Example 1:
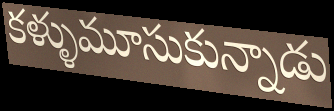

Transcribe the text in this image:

కళ్ళుమూసుకున్నాడు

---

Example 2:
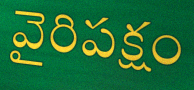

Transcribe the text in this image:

వైరిపక్షం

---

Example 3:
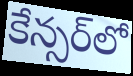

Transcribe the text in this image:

కేన్సర్‌లో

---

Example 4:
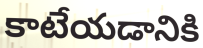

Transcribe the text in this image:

కాటేయడానికి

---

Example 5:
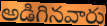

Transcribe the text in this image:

అడిగినవారు